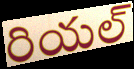
రియల్